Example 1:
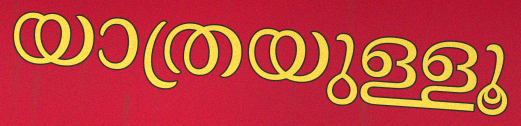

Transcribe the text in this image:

യാത്രയുള്ളൂ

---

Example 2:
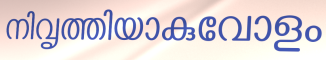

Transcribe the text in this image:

നിവൃത്തിയാകുവോളം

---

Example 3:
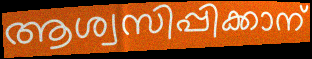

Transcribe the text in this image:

ആശ്വസിപ്പിക്കാന്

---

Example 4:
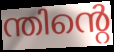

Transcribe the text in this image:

ന്തിന്റെ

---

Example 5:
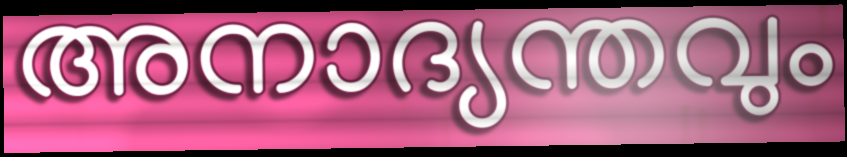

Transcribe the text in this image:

അനാദ്യന്തവും